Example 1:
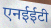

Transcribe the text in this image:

एनईईटी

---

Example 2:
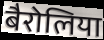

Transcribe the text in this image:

बैरोलिया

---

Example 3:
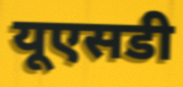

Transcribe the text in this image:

यूएसडी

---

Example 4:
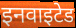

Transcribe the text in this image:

इनवाइटेड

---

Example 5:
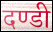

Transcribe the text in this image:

दण्डी